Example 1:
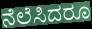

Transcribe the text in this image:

ನೆಲೆಸಿದರೂ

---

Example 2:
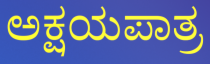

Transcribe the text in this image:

ಅಕ್ಷಯಪಾತ್ರ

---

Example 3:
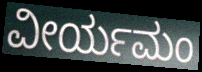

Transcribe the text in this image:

ವೀರ್ಯಮಂ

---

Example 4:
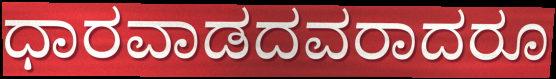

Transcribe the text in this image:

ಧಾರವಾಡದವರಾದರೂ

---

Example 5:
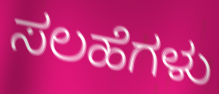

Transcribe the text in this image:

ಸಲಹೆಗಳು